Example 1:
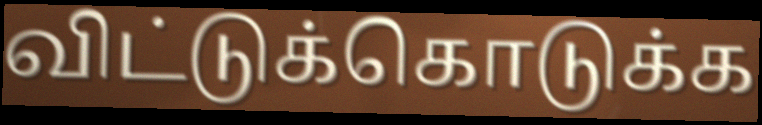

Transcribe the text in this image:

விட்டுக்கொடுக்க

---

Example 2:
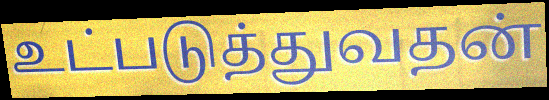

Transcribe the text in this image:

உட்படுத்துவதன்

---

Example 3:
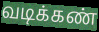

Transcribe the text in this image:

வடிக்கண்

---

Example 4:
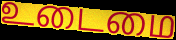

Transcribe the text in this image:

உடைமை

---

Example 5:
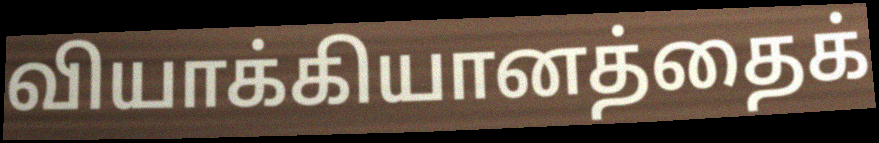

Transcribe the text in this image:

வியாக்கியானத்தைக்